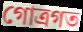
গোত্রগত